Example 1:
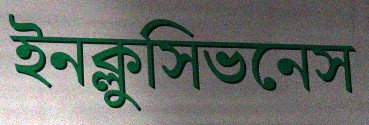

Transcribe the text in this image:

ইনক্লুসিভনেস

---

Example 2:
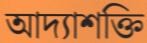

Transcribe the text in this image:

আদ্যাশক্তি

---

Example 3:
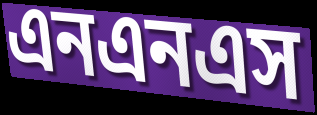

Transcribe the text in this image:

এনএনএস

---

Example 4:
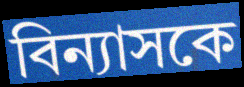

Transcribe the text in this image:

বিন্যাসকে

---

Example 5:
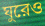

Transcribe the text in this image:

ঘুরেও